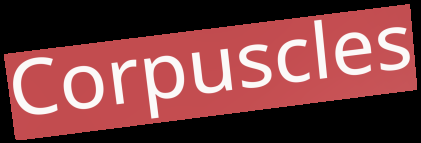
Corpuscles